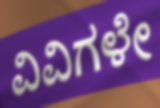
ವಿವಿಗಳೇ